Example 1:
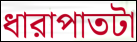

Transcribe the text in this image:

ধারাপাতটা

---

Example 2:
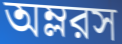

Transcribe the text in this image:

অম্লরস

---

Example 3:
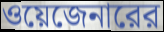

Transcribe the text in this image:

ওয়েজেনারের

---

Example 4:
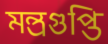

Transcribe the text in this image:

মন্ত্রগুপ্তি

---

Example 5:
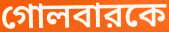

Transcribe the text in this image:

গোলবারকে